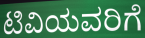
ಟಿವಿಯವರಿಗೆ